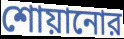
শোয়ানোর